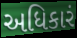
અધિકારં